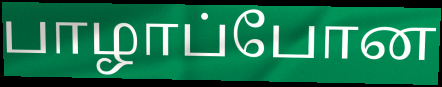
பாழாப்போன